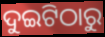
ଦୁଇଟିଠାରୁ